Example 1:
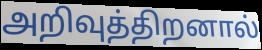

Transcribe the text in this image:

அறிவுத்திறனால்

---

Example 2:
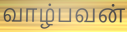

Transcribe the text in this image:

வாழ்பவன்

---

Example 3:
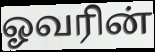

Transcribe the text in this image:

ஓவரின்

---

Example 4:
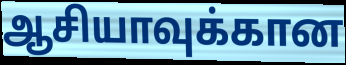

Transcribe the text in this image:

ஆசியாவுக்கான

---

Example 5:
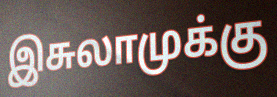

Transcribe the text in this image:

இசுலாமுக்கு